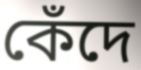
কেঁদে